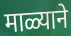
माळ्याने